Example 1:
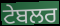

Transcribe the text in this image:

ਟੇਬਲਰ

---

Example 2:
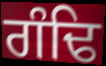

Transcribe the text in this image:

ਗੰਢਿ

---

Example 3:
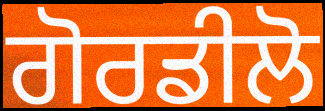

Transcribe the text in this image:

ਗੋਰਡੀਲੋ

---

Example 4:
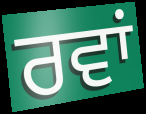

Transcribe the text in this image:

ਰਵਾਂ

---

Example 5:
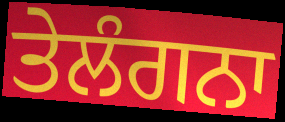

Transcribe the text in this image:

ਤੇਲੰਗਨਾ